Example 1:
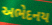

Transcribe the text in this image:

અભેદનય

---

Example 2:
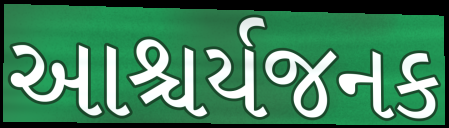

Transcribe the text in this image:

આશ્ચર્યજનક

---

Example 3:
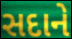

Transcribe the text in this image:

સદાને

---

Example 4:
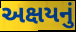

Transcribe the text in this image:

અક્ષયનું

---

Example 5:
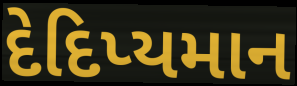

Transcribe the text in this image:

દેદિપ્યમાન